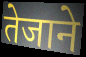
तेजाने